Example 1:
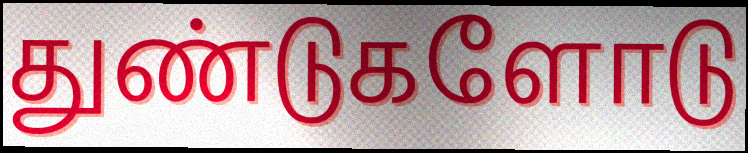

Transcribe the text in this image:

துண்டுகளோடு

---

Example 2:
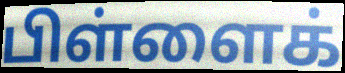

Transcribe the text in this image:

பிள்ளைக்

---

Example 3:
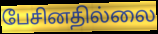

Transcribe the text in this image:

பேசினதில்லை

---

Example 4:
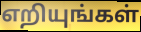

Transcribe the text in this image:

எறியுங்கள்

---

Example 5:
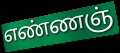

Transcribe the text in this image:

எண்ணஞ்